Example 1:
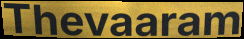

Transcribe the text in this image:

Thevaaram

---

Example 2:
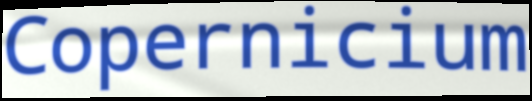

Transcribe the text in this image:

Copernicium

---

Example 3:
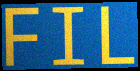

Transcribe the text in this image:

FIL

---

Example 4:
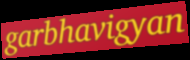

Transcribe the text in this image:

garbhavigyan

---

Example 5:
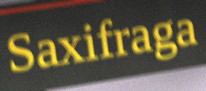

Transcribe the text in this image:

Saxifraga